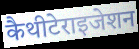
कैथीटेराइजेशन